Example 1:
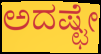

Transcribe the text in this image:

ಅದಷ್ಟೇ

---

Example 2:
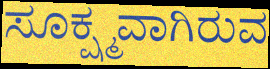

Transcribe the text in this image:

ಸೂಕ್ಷ್ಮವಾಗಿರುವ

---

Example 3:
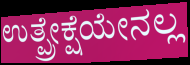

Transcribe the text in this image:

ಉತ್ಪ್ರೇಕ್ಷೆಯೇನಲ್ಲ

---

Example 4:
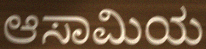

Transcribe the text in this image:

ಆಸಾಮಿಯ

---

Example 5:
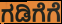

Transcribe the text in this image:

ಗಡಿಗೆಗೆ